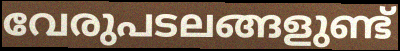
വേരുപടലങ്ങളുണ്ട്